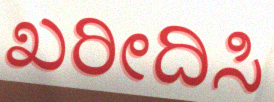
ಖರೀದಿಸಿ